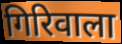
गिरिवाला